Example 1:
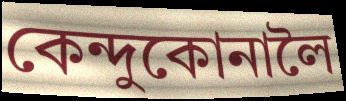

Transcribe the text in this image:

কেন্দুকোনালৈ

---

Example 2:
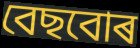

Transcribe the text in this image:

বেছবোৰ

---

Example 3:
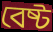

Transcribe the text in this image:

বেষ্ট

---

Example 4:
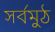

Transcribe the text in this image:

সৰ্বমুঠ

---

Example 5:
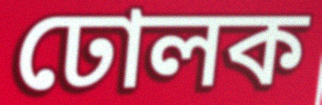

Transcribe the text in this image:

ঢোলক